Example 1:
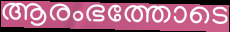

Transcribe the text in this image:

ആരംഭത്തോടെ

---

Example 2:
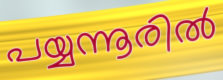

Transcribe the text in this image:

പയ്യന്നൂരിൽ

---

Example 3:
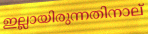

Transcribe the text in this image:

ഇല്ലായിരുന്നതിനാല്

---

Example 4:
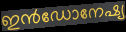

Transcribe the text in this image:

ഇൻഡോനേഷ്യ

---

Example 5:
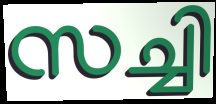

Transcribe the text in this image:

സച്ചി